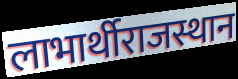
लाभार्थीराजस्थान